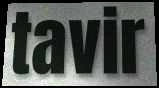
tavir